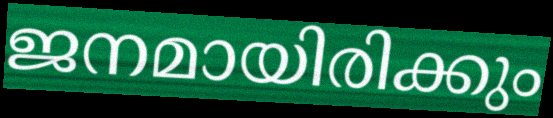
ജനമായിരിക്കും